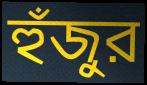
হুঁজুর